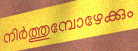
നിർത്തുമ്പോഴേക്കും